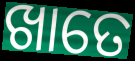
ଖାତେ